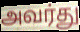
அவர்து